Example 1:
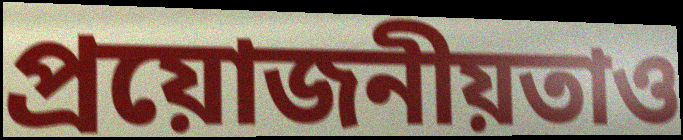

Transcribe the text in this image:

প্রয়োজনীয়তাও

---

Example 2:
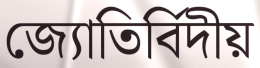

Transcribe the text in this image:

জ্যোতির্বিদীয়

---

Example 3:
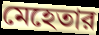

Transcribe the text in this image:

মেহেতার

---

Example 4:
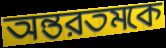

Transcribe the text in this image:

অন্তরতমকে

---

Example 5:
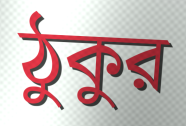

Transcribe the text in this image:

ঠুকুর